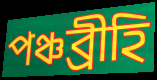
পঞ্চব্রীহি